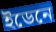
ইডেনে